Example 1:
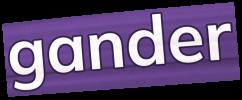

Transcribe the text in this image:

gander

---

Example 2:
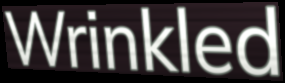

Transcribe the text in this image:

Wrinkled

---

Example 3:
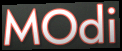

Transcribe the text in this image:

MOdi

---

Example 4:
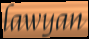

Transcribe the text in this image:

lawyan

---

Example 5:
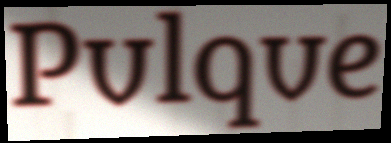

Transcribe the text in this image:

Pulque